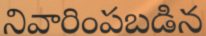
నివారింపబడిన